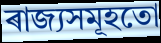
ৰাজ্যসমূহতো